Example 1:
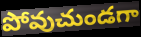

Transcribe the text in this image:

పోవుచుండగా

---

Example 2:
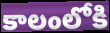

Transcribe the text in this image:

కాలంలోకి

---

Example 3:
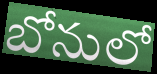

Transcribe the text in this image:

బోనులో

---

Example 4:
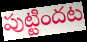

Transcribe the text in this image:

పుట్టిందట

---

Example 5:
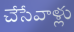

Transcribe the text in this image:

చేసేవాళ్లు